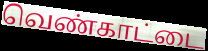
வெண்காட்டை